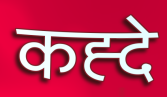
कह्दे